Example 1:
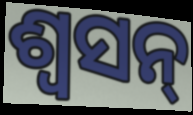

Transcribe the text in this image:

ଶ୍ୱସନ୍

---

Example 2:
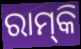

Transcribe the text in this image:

ରାମ୍‌କି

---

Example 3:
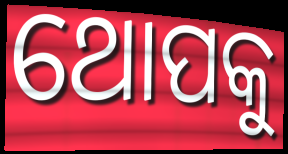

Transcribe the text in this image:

ଥୋପକୁ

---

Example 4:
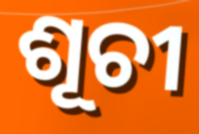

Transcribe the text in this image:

ଶୂଚୀ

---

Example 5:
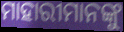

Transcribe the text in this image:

ମାହାରୀମାନଙ୍କୁ